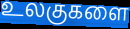
உலகுகளை